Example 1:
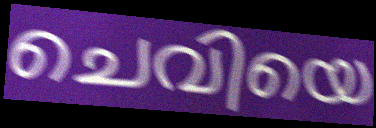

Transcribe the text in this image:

ചെവിയെ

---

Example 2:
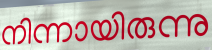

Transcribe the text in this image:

നിന്നായിരുന്നു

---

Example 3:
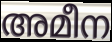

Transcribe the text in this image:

അമീന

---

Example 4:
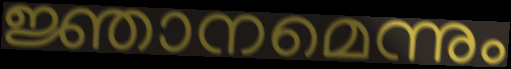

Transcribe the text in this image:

ജ്ഞാനമെന്നും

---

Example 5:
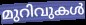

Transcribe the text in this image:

മുറിവുകൾ